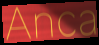
Anca